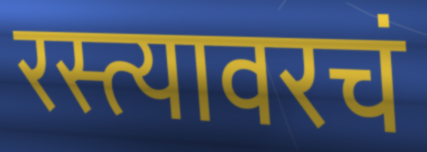
रस्त्यावरचं